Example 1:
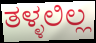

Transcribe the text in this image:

ತಳ್ಳಲಿಲ್ಲ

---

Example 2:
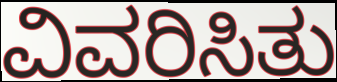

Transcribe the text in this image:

ವಿವರಿಸಿತು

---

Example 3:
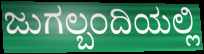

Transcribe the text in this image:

ಜುಗಲ್ಬಂದಿಯಲ್ಲಿ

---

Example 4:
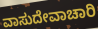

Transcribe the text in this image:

ವಾಸುದೇವಾಚಾರಿ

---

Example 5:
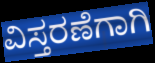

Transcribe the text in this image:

ವಿಸ್ತರಣೆಗಾಗಿ